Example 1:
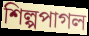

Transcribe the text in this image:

শিল্পপাগল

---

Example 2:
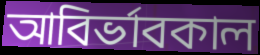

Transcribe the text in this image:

আবির্ভাবকাল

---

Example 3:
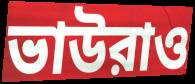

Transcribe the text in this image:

ভাউরাও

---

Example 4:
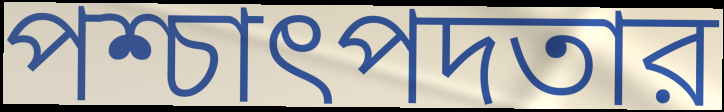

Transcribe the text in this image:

পশ্চাৎপদতার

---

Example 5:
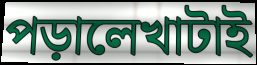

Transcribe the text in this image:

পড়ালেখাটাই